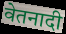
वेतनादी